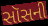
સૉસની